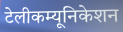
टेलीकम्‍यूनिकेशन